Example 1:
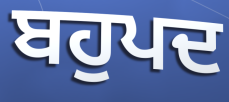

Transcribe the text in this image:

ਬਹੁਪਦ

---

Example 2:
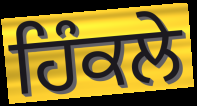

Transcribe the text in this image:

ਹਿੰਕਲੇ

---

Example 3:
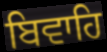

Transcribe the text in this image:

ਬਿਵਾਹਿ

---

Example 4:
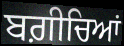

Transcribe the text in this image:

ਬਗ਼ੀਚਿਆਂ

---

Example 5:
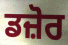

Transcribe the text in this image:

ਡਜ਼ੋਰ